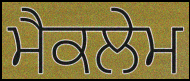
ਮੈਕਲੇਮ